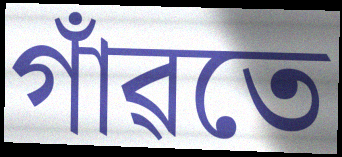
গাঁৱতে